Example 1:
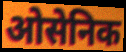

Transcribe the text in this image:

ओसेनिक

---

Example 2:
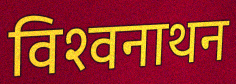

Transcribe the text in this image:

विश्वनाथन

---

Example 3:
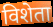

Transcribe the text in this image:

विशेता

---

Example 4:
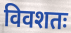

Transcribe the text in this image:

विवशतः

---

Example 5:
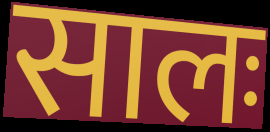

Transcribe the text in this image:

सालः